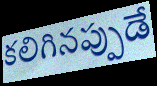
కలిగినప్పుడే